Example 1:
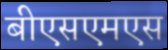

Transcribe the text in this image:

बीएसएमएस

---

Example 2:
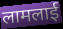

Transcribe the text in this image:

लामलाई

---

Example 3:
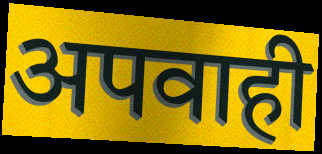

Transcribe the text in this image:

अपवाही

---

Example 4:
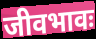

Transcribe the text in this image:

जीवभावः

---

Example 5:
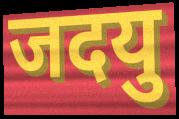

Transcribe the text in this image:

जदयु